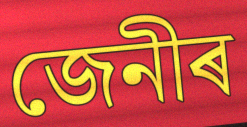
জেনীৰ